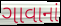
ગાવાનાં